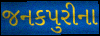
જનકપુરીના